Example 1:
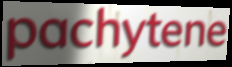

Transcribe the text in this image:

pachytene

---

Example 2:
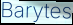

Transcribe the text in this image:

Barytes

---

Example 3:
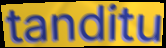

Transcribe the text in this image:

tanditu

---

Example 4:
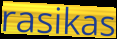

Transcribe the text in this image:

rasikas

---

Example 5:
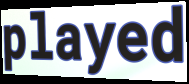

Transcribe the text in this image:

played